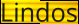
Lindos